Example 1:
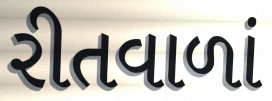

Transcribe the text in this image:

રીતવાળાં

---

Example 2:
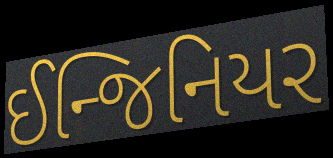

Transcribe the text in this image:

ઈન્જિનિયર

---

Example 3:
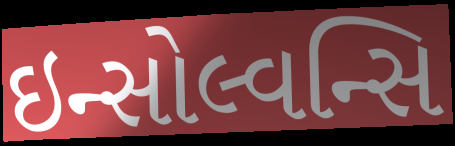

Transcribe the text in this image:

ઇન્સોલ્વન્સિ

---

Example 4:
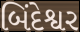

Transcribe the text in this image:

બિંદેશ્વર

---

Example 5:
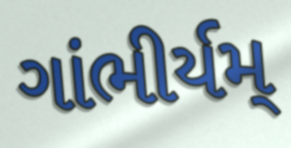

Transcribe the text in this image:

ગાંભીર્યમ્